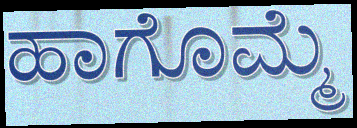
ಹಾಗೊಮ್ಮೆ